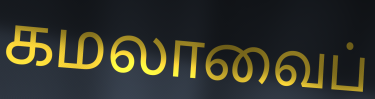
கமலாவைப்